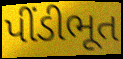
પીંડીભૂત